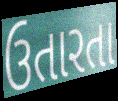
ઉતારતા